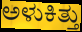
ಅಳುಕಿತ್ತು